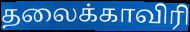
தலைக்காவிரி